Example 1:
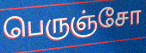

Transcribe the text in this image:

பெருஞ்சோ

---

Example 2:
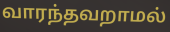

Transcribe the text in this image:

வாரந்தவறாமல்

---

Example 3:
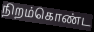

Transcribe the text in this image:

நிறம்கொண்ட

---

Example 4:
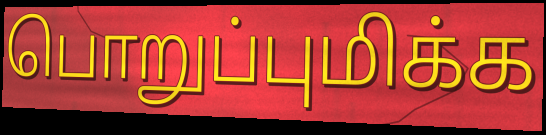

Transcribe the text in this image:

பொறுப்புமிக்க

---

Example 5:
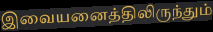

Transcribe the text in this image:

இவையனைத்திலிருந்தும்